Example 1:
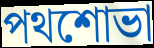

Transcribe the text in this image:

পথশোভা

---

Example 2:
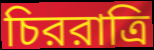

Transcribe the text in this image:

চিররাত্রি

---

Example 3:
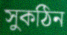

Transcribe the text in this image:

সুকঠিন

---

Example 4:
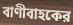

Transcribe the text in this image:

বাণীবাহকের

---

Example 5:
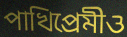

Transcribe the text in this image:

পাখিপ্রেমীও